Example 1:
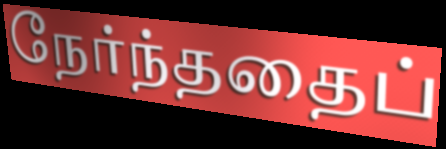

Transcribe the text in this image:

நேர்ந்ததைப்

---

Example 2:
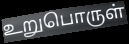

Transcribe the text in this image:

உறுபொருள்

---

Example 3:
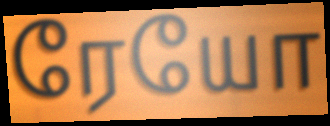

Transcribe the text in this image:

ரேயோ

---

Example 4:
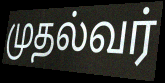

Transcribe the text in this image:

முதல்வர்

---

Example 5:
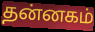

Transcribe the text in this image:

தன்னகம்